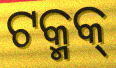
ଟକ୍ମକ୍